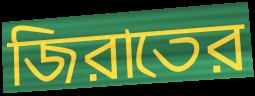
জিরাতের